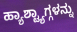
ಹ್ಯಾಶ್ಟ್ಯಾಗ್ಗಳನ್ನು